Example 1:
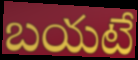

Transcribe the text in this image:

బయటే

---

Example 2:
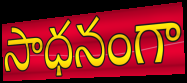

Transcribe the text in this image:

సాధనంగా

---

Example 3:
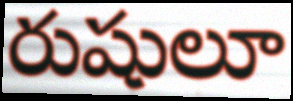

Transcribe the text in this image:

రుషులూ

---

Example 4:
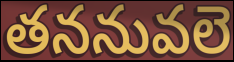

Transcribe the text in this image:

తననువలె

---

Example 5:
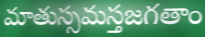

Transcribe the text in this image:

మాతుస్సమస్తజగతాం